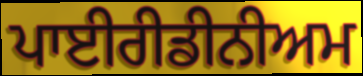
ਪਾਈਰੀਡੀਨੀਅਮ